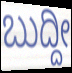
ಬುದ್ದೀ